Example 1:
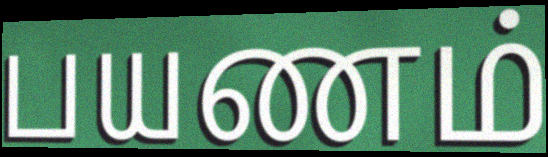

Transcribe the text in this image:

பயணம்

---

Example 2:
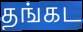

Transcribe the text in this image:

தங்கட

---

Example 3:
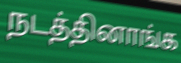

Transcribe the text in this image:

நடத்தினாங்க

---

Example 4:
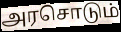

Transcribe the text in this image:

அரசொடும்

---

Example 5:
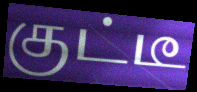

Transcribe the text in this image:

குட்டீ